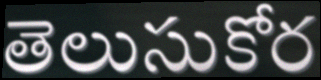
తెలుసుకోర